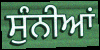
ਸੁੰਨੀਆਂ